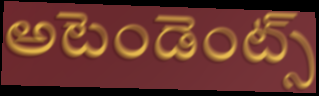
అటెండెంట్స్